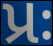
પ્રઃ